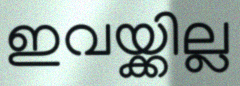
ഇവയ്ക്കില്ല